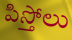
పిస్తోలు